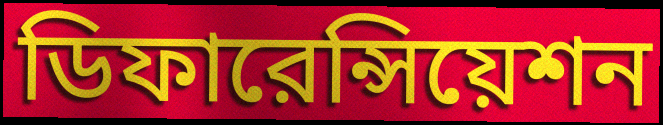
ডিফারেন্সিয়েশন